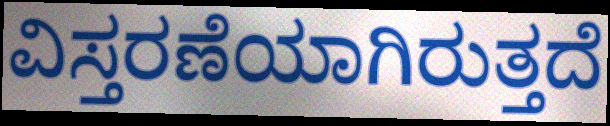
ವಿಸ್ತರಣೆಯಾಗಿರುತ್ತದೆ